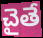
చైతే